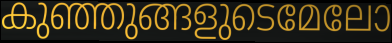
കുഞ്ഞുങ്ങളുടെമേലോ